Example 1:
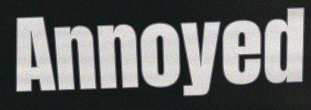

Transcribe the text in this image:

Annoyed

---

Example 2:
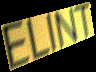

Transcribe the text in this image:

ELINT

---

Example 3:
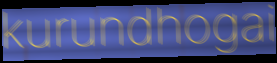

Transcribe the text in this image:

kurundhogai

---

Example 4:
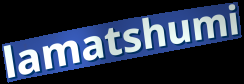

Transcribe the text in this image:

lamatshumi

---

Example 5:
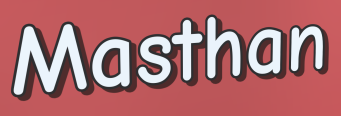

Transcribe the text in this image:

Masthan